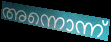
അന്നൊന്ന്